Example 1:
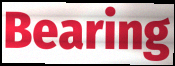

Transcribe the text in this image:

Bearing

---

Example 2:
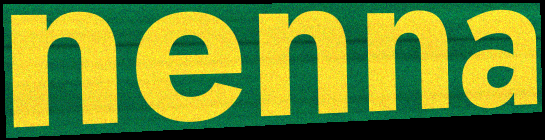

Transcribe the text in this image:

nenna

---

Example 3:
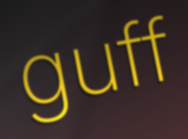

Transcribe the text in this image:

guff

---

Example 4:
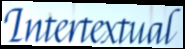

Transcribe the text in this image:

Intertextual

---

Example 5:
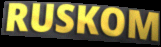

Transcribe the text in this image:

RUSKOM